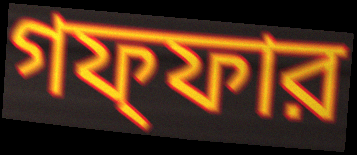
গফ্ফার